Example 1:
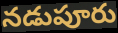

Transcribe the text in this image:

నడుపూరు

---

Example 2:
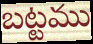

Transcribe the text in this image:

బట్టము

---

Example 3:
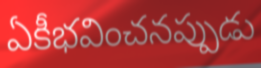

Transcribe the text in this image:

ఏకీభవించనప్పుడు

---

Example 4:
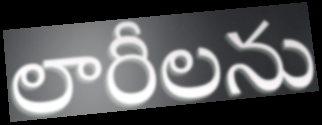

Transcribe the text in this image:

లారీలను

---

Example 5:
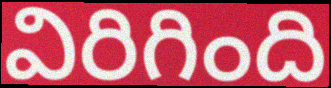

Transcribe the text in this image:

విరిగింది